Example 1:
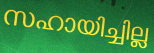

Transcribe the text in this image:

സഹായിച്ചില്ല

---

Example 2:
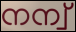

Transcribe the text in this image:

നന്വ്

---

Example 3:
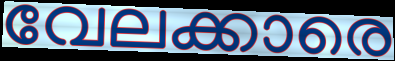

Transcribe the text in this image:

വേലക്കാരെ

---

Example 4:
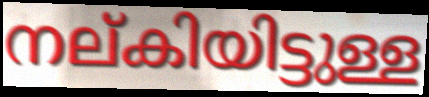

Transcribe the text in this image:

നല്കിയിട്ടുള്ള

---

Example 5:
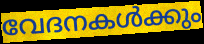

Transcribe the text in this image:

വേദനകൾക്കും